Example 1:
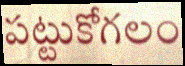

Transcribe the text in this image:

పట్టుకోగలం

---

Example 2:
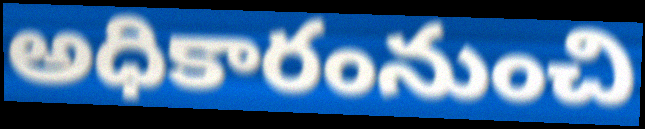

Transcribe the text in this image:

అధికారంనుంచి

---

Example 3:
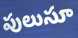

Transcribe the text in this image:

పులుసూ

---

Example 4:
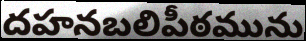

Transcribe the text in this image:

దహనబలిపీఠమును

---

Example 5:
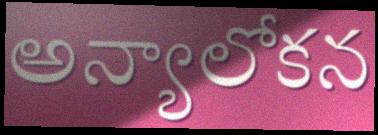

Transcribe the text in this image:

అన్యాలోకన